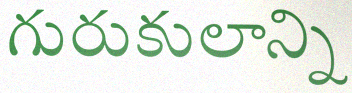
గురుకులాన్ని